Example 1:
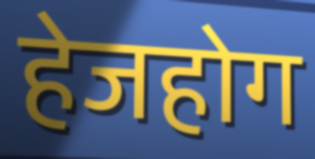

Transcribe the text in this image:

हेजहोग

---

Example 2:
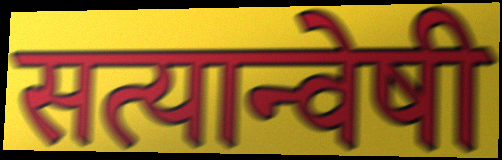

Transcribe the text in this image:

सत्यान्वेषी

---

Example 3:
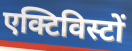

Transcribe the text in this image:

एक्टिविस्टों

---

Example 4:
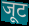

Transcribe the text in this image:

जूट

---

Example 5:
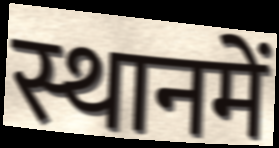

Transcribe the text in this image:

स्थानमें